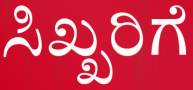
ಸಿಖ್ಖರಿಗೆ